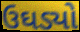
ઉઘડ્યો